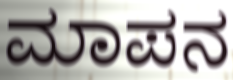
ಮಾಪನ